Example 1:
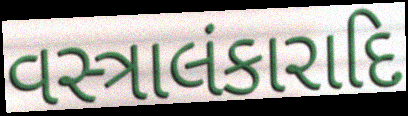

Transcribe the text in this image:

વસ્ત્રાલંકારાદિ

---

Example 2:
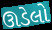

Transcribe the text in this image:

ઊડેલો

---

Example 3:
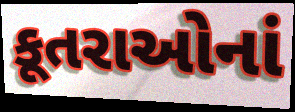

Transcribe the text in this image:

કૂતરાઓનાં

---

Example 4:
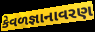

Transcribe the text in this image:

કેવળજ્ઞાનાવરણ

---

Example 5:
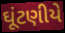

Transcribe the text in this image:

ઘૂંટણીયે